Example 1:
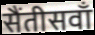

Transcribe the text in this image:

सैंतीसवाँ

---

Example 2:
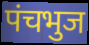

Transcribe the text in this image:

पंचभुज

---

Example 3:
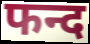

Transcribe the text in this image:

फन्द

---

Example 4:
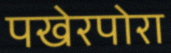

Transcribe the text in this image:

पखेरपोरा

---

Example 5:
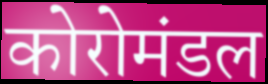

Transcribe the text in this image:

कोरोमंडल